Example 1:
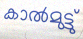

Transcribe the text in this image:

കാൽമുട്ടു്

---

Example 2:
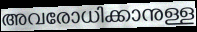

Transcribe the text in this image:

അവരോധിക്കാനുള്ള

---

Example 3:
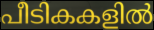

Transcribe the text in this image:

പീടികകളിൽ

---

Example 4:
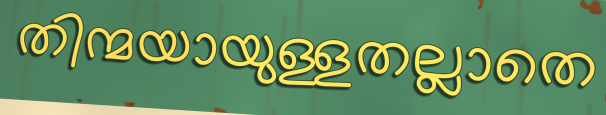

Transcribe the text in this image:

തിന്മയായുള്ളതല്ലാതെ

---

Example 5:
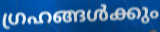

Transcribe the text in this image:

ഗ്രഹങ്ങൾക്കും